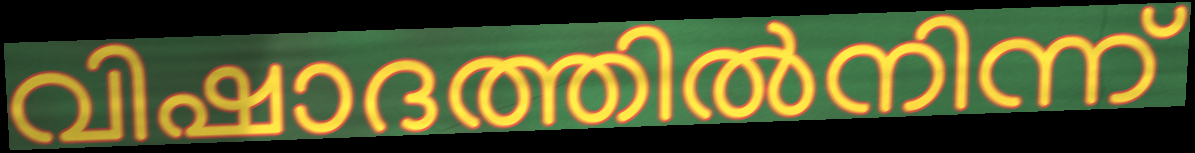
വിഷാദത്തിൽനിന്ന്